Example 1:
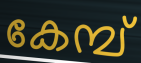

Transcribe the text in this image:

കേമ്പ്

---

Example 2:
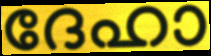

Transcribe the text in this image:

ദേഹാ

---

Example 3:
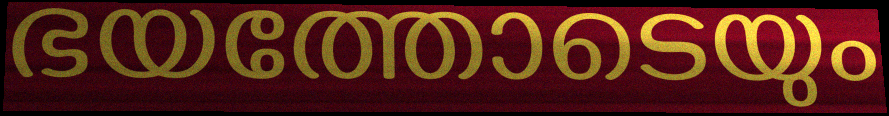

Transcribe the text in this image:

ഭയത്തോടെയും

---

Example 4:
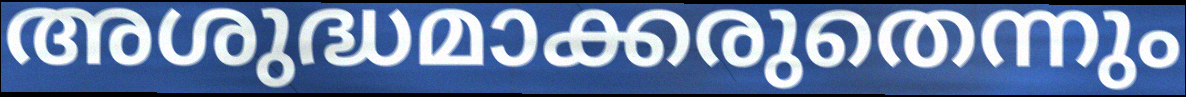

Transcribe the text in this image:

അശുദ്ധമാക്കരുതെന്നും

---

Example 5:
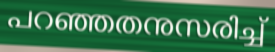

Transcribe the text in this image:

പറഞ്ഞതനുസരിച്ച്